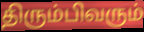
திரும்பிவரும்